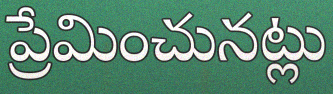
ప్రేమించునట్లు